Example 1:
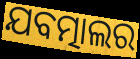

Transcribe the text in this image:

ଯବତ୍ମାଲର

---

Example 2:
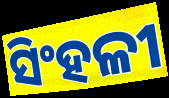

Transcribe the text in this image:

ସିଂହଳୀ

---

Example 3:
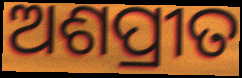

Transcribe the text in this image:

ଅଶପ୍ରୀତ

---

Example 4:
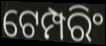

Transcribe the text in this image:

ଟେମ୍ପରିଂ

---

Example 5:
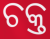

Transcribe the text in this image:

ଚକ୍ତ